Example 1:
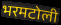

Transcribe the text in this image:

भरमटोली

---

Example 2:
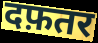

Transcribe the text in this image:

दफ़तर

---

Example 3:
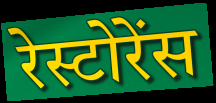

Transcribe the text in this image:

रेस्टोरेंस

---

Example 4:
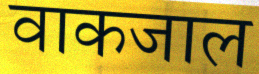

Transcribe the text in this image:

वाकजाल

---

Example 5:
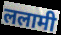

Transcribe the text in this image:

ललामी